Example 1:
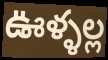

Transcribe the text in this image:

ఊళ్ళల్ల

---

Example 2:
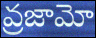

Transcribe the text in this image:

వ్రజామో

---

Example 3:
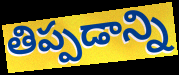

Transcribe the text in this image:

తిప్పడాన్ని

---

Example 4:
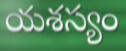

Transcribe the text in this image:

యశస్యం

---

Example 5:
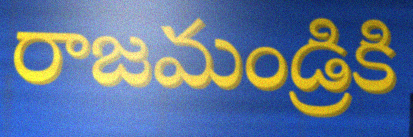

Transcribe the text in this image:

రాజమండ్రికి